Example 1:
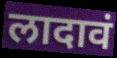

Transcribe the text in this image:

लादावं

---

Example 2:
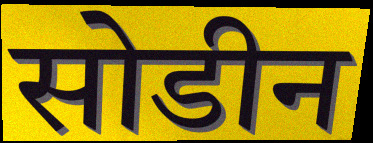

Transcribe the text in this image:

सोडीन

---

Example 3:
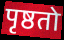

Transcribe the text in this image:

पृष्ठतो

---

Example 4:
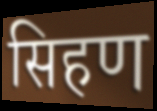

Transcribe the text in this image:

सिहण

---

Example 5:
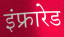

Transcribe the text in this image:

इंफ्रारेड